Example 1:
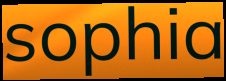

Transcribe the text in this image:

sophia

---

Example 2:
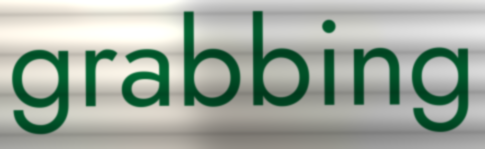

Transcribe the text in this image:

grabbing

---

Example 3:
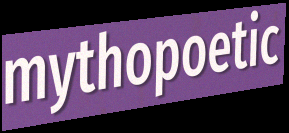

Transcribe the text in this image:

mythopoetic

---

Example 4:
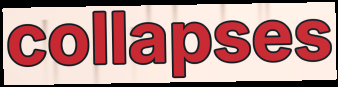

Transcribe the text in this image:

collapses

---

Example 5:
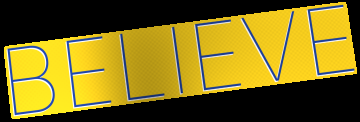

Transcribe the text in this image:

BELIEVE